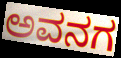
ಅವನಗ